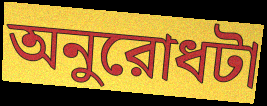
অনুরোধটা